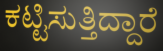
ಕಟ್ಟಿಸುತ್ತಿದ್ದಾರೆ